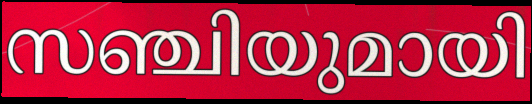
സഞ്ചിയുമായി